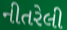
નીતરેલી